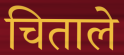
चिताले